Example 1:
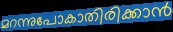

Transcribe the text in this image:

മറന്നുപോകാതിരിക്കാൻ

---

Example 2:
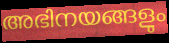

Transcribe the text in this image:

അഭിനയങ്ങളും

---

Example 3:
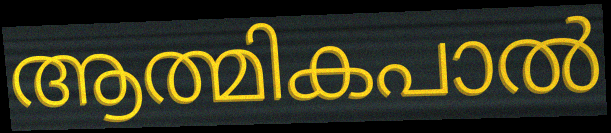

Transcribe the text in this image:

ആത്മികപാൽ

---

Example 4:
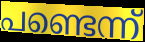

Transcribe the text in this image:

പണ്ടെന്ന്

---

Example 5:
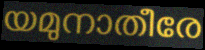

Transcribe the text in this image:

യമുനാതീരേ